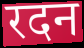
रदन